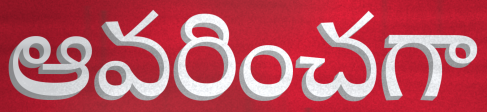
ఆవరించగా